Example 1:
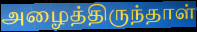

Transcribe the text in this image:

அழைத்திருந்தாள்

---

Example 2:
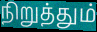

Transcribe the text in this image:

நிறுத்தும்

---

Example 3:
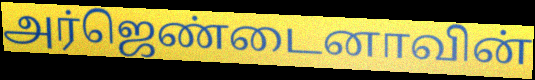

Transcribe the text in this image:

அர்ஜெண்டைனாவின்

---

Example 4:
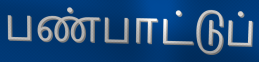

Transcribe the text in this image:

பண்பாட்டுப்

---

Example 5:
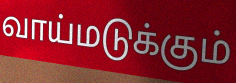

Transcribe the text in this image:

வாய்மடுக்கும்